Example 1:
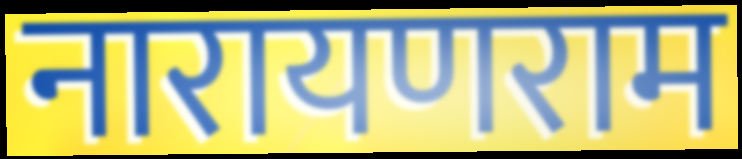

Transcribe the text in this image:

नारायणराम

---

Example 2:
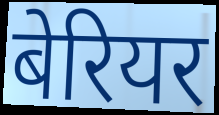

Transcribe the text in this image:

बेरियर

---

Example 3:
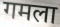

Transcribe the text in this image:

गमला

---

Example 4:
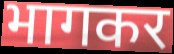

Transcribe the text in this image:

भागकर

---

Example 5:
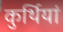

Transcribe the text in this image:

कुर्थियां